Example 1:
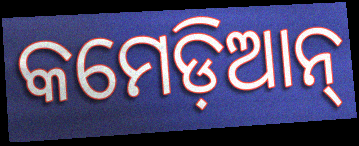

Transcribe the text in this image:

କମେଡ଼ିଆନ୍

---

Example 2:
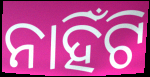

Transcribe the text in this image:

ନାହିଁଟି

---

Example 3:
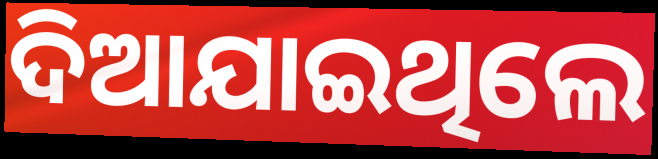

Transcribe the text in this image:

ଦିଆଯାଇଥିଲେ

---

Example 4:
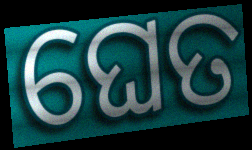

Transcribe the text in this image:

ଘେତ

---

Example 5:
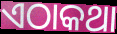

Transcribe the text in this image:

ଏଠାକଥା